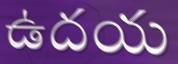
ఉదయ